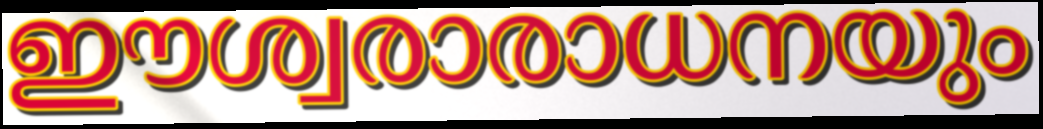
ഈശ്വരാരാധനയും